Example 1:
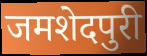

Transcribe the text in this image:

जमशेदपुरी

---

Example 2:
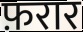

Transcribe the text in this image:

फ़रार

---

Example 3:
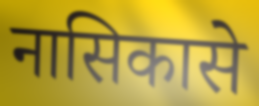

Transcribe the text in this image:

नासिकासे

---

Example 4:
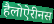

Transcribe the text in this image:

हैलोऐरीनस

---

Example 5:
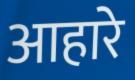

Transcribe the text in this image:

आहारे